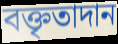
বক্তৃতাদান